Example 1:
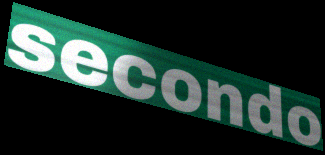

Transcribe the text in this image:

secondo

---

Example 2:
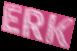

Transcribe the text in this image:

ERK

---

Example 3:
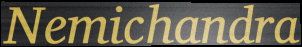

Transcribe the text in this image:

Nemichandra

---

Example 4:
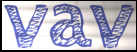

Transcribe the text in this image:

vav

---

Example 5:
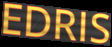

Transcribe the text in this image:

EDRIS